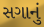
સગાનું